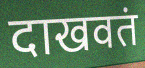
दाखवतं